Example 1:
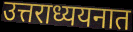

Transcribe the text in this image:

उत्तराध्ययनात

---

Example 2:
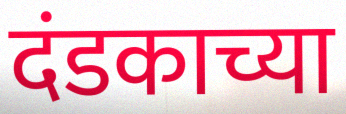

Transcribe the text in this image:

दंडकाच्या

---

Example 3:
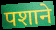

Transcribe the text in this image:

पशाने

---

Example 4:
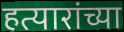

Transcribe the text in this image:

हत्यारांच्या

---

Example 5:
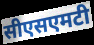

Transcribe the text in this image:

सीएसएमटी